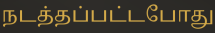
நடத்தப்பட்டபோது